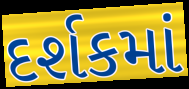
દર્શકમાં